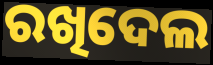
ରଖିଦେଲ